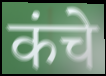
कंचे